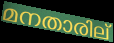
മനതാരില്